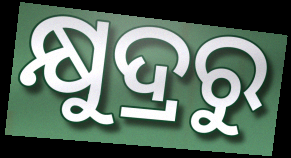
କ୍ଷୁଦ୍ରରୁ